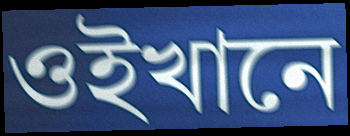
ওইখানে